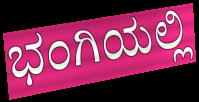
ಭಂಗಿಯಲ್ಲಿ